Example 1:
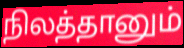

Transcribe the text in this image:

நிலத்தானும்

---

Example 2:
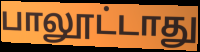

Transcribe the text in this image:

பாலூட்டாது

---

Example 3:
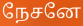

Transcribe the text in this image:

நேசனே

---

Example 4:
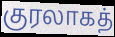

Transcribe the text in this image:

குரலாகத்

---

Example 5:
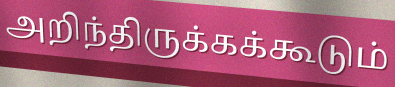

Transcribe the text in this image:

அறிந்திருக்கக்கூடும்